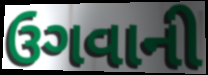
ઉગવાની